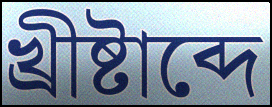
খ্রীষ্টাব্দে